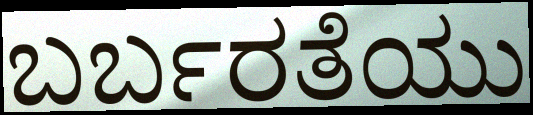
ಬರ್ಬರತೆಯು